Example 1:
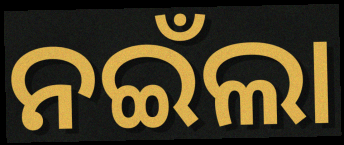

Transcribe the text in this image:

ନଇଁଲା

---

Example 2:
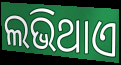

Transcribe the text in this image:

ଲଭିଥାଏ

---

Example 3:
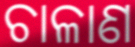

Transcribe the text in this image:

ଚାଳାଣ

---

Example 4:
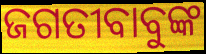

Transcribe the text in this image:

ଜଗତୀବାବୁଙ୍କ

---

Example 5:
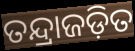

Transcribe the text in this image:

ତନ୍ଦ୍ରାଜଡ଼ିତ